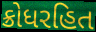
ક્રોધરહિત